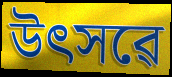
উৎসৱে